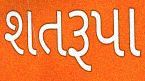
શતરૂપા